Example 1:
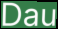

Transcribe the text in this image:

Dau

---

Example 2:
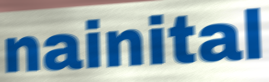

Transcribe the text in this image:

nainital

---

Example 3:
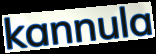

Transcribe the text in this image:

kannula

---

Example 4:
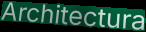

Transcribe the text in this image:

Architectura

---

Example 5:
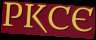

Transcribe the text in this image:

PKCE